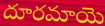
దూరమాయె